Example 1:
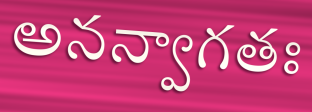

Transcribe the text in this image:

అనన్వాగతః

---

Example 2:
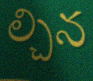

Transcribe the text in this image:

ల్చిన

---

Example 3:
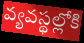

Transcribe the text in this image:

వ్యవస్థల్లోకి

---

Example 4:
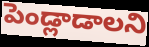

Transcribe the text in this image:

పెండ్లాడాలని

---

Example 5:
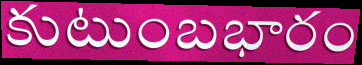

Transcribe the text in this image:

కుటుంబభారం